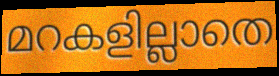
മറകളില്ലാതെ